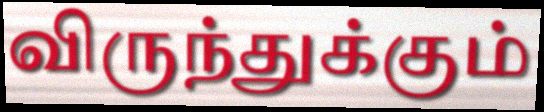
விருந்துக்கும்